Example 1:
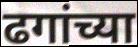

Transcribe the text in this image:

ढगांच्या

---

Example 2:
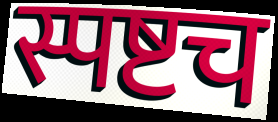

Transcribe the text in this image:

स्पष्टच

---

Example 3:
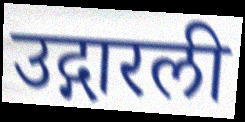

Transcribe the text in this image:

उद्गारली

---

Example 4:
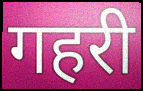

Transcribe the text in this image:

गहरी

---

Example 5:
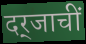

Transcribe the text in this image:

दर्जाचीं